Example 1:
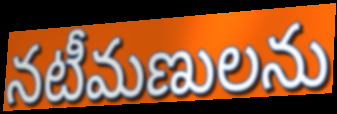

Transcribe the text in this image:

నటీమణులను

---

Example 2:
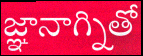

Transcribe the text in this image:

జ్ఞానాగ్నితో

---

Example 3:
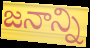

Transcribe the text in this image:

జనాన్ని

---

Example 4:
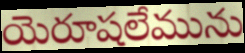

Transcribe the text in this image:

యెరూషలేమును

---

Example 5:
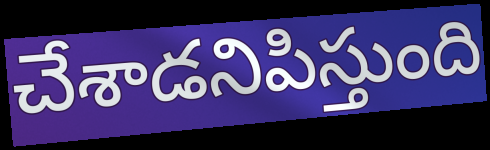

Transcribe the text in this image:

చేశాడనిపిస్తుంది